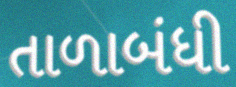
તાળાબંધી